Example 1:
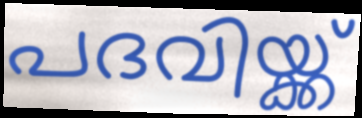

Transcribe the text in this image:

പദവിയ്ക്ക്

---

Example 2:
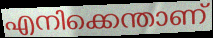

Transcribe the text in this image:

എനിക്കെന്താണ്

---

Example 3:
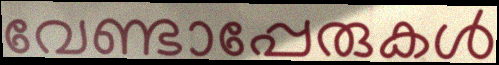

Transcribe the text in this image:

വേണ്ടാപ്പേരുകൾ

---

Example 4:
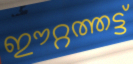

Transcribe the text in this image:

ഈറ്റത്തട്ട്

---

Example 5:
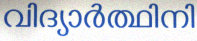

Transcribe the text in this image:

വിദ്യാർത്ഥിനി